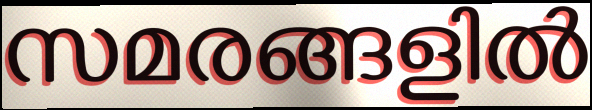
സമരങ്ങളിൽ